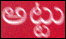
అట్టు